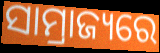
ସାମ୍ରାଜ୍ୟରେ